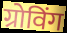
ग्रोविंग